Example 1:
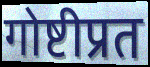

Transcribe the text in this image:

गोष्टीप्रत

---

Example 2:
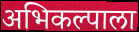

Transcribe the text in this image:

अभिकल्पाला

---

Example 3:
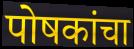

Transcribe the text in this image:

पोषकांचा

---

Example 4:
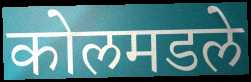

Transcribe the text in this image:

कोलमडले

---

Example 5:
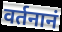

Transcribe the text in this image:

वर्तनानं